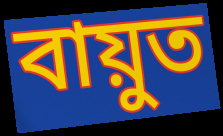
বায়ুত